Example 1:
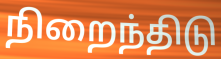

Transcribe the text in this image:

நிறைந்திடு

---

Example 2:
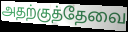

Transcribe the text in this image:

அதற்குத்தேவை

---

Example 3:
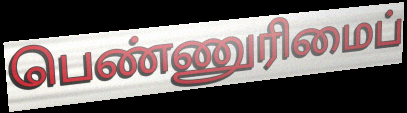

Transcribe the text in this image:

பெண்ணுரிமைப்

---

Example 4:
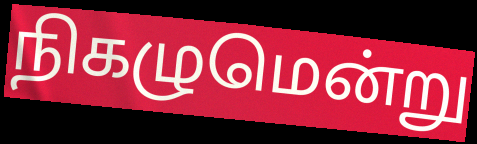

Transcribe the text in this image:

நிகழுமென்று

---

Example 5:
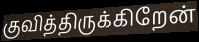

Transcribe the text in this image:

குவித்திருக்கிறேன்